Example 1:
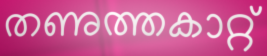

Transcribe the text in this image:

തണുത്തകാറ്റ്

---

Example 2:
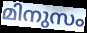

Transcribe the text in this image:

മിനുസം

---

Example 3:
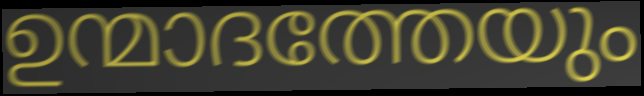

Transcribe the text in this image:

ഉന്മാദത്തേയും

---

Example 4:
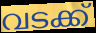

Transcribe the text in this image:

വടക്ക്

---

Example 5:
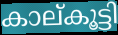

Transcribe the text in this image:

കാല്കൂട്ടി